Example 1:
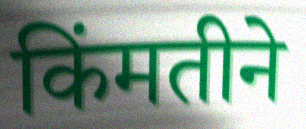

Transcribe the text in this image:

किंमतीने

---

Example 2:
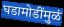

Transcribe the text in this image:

घडामोडींमुळं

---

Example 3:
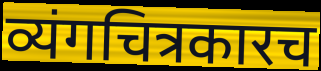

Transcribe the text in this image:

व्यंगचित्रकारच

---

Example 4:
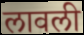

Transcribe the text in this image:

लावली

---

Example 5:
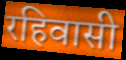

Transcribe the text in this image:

रहिवासी